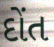
દોંત